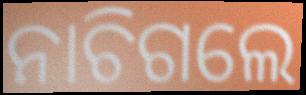
ନାଚିଗଲେ